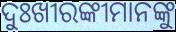
ଦୁଃଖୀରଙ୍କୀମାନଙ୍କୁ